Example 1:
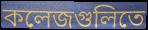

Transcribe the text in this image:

কলেজগুলিতে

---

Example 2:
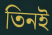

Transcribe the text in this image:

তিনই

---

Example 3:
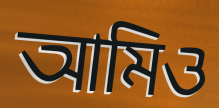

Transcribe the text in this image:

আমিও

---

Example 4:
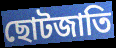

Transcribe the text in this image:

ছোটজাতি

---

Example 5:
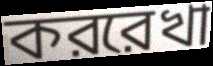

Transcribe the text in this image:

কররেখা